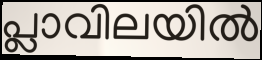
പ്ലാവിലയിൽ